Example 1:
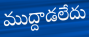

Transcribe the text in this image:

ముద్దాడలేదు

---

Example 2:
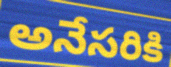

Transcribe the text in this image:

అనేసరికి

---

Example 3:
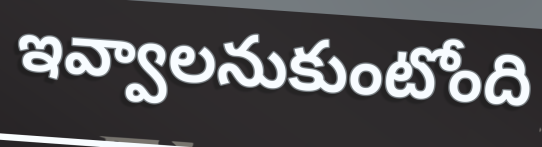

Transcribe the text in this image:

ఇవ్వాలనుకుంటోంది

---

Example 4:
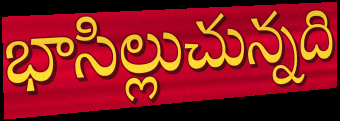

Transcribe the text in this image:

భాసిల్లుచున్నది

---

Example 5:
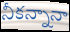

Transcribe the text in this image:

నీకన్నానా